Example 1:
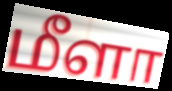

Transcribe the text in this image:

மீளா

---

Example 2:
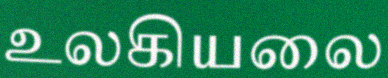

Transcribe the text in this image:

உலகியலை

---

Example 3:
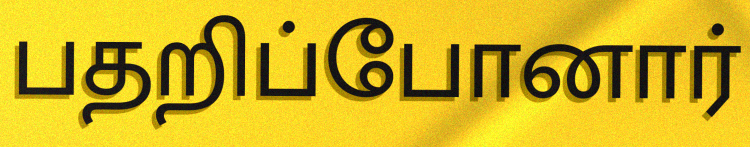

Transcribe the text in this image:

பதறிப்போனார்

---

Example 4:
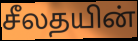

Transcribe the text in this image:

சீலதயின்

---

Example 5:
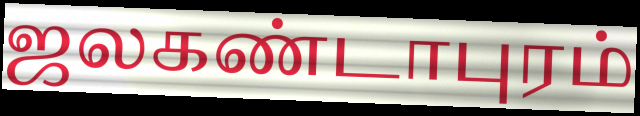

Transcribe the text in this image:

ஜலகண்டாபுரம்